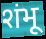
शंभू